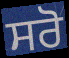
ਸਰੋ